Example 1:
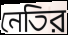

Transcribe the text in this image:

নেতির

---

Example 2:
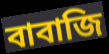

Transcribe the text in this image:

বাবাজি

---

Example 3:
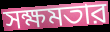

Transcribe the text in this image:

সক্ষমতার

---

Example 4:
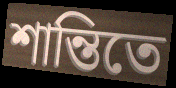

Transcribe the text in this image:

শান্তিতে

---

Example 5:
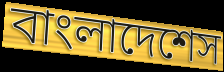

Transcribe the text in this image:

বাংলাদেশেস